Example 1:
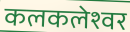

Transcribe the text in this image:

कलकलेश्वर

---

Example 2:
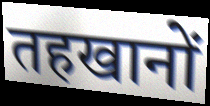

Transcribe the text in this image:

तहखानों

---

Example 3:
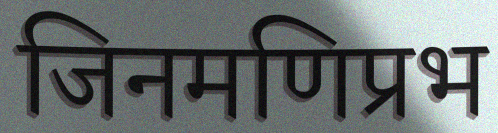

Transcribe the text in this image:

जिनमणिप्रभ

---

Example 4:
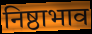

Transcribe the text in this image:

निष्ठाभाव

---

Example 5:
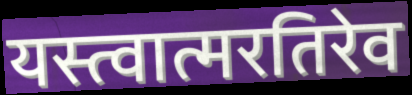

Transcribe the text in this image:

यस्त्वात्मरतिरेव